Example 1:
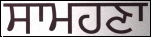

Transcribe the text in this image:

ਸਾਮਹਣਾ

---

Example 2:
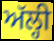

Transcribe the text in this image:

ਅੱਲ੍ਹੀ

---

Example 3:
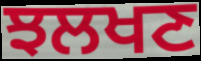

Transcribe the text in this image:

ਝਲਖਣ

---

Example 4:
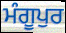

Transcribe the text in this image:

ਮੰਗੂਪੁਰ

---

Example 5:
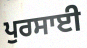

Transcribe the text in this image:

ਪੁਰਸਾਈ